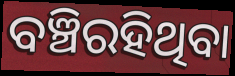
ବଞ୍ଚିରହିଥିବା